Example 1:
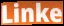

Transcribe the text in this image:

Linke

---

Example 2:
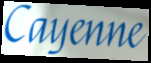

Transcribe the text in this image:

Cayenne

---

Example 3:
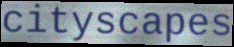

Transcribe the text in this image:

cityscapes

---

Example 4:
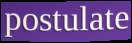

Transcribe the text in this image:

postulate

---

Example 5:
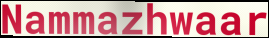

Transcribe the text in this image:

Nammazhwaar